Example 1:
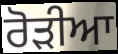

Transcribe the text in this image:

ਰੋੜੀਆ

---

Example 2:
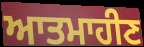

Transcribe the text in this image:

ਆਤਮਾਹੀਣ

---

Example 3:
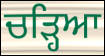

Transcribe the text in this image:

ਚਡ਼੍ਹਿਆ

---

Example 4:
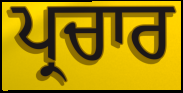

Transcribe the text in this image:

ਪ੍ਰਚਾਰ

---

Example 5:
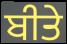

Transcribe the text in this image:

ਬੀਤੇ